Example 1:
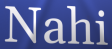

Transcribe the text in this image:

Nahi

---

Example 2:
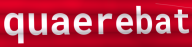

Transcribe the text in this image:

quaerebat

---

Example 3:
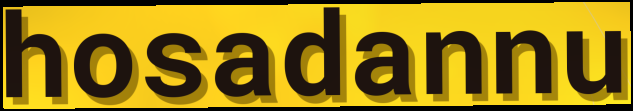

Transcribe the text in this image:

hosadannu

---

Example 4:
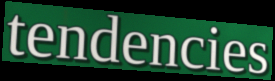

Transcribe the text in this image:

tendencies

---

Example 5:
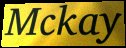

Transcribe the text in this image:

Mckay